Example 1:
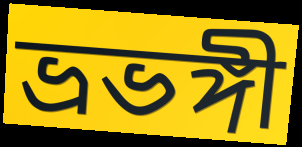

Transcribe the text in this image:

ভ্রভঙ্গী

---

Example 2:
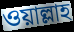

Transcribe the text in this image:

ওয়াল্লাহ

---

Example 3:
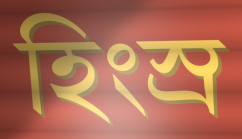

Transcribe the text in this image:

হিংস্র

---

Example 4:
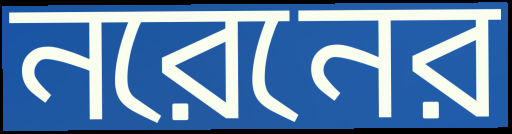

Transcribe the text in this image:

নরেনের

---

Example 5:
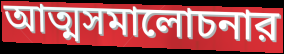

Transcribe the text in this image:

আত্মসমালোচনার